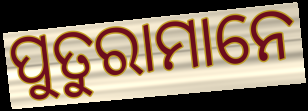
ପୁତୁରାମାନେ